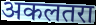
अकलतरा